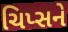
ચિપ્સને